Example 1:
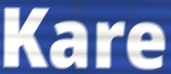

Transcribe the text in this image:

Kare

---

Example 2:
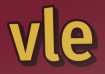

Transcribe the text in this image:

vle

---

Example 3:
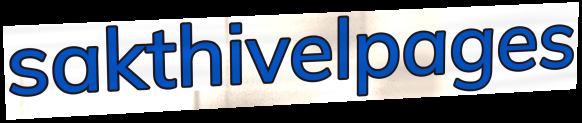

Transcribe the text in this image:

sakthivelpages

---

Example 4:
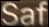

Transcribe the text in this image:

Saf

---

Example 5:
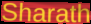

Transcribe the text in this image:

Sharath